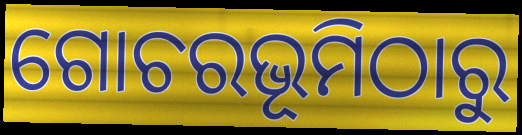
ଗୋଚରଭୂମିଠାରୁ